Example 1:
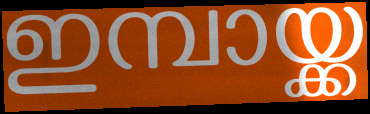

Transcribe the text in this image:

ഇമ്പായ്ക്ക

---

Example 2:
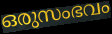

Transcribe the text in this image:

ഒരുസംഭവം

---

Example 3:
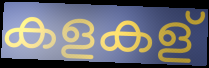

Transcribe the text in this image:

കളകള്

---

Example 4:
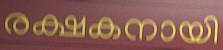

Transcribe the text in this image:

രക്ഷകനായി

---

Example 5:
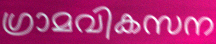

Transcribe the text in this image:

ഗ്രാമവികസന